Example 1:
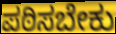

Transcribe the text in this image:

ಪಠಿಸಬೇಕು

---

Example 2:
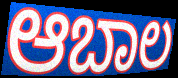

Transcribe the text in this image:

ಆಬಾಲ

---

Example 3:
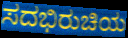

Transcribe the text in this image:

ಸದಭಿರುಚಿಯ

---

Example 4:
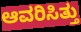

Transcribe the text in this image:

ಆವರಿಸಿತ್ತು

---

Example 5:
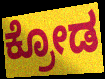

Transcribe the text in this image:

ಕ್ರೋಡ